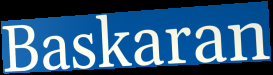
Baskaran